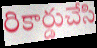
రికార్డుచేసి